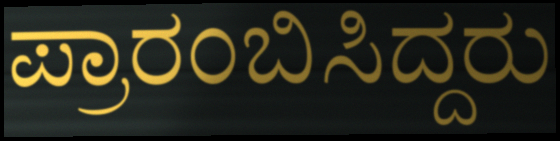
ಪ್ರಾರಂಬಿಸಿದ್ದರು